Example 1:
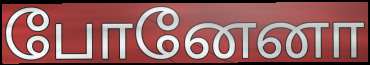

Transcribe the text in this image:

போனேனா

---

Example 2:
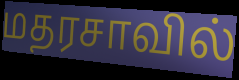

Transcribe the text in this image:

மதரசாவில்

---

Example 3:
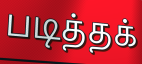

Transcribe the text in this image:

படித்தக்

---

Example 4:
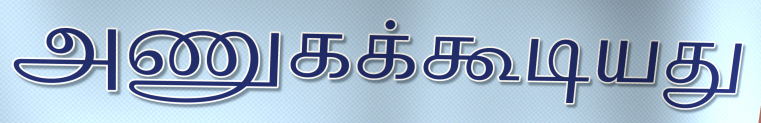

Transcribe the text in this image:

அணுகக்கூடியது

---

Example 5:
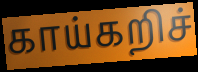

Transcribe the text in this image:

காய்கறிச்